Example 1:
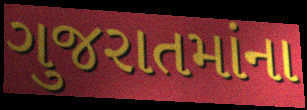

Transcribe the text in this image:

ગુજરાતમાંના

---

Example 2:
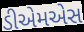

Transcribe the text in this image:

ડીએમએસ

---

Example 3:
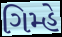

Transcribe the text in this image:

ગિમ્હે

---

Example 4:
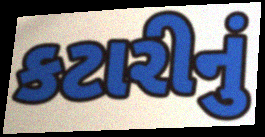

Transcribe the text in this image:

કટારીનું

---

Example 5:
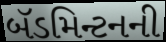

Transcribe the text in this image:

બૅડમિન્ટનની